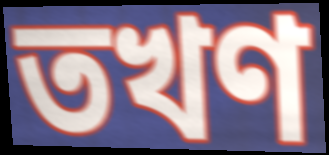
তখণ